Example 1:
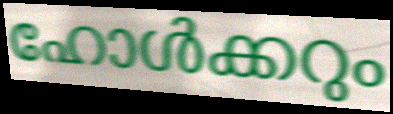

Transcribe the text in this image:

ഹോൾക്കറും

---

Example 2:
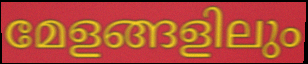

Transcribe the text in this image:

മേളങ്ങളിലും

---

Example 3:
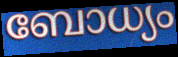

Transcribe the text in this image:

ബോധ്യം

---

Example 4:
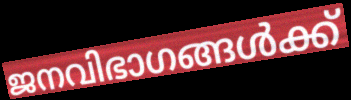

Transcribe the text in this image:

ജനവിഭാഗങ്ങൾക്ക്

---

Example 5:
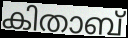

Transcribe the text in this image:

കിതാബ്